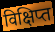
विक्षिप्त